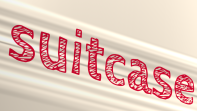
suitcase